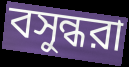
বসুন্ধরা